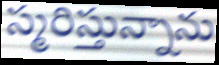
స్మరిస్తున్నాను